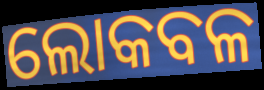
ଲୋକବଳ